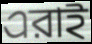
এরাই